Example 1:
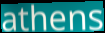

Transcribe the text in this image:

athens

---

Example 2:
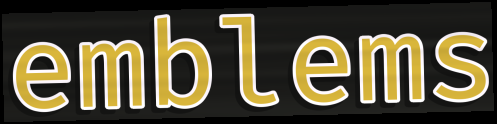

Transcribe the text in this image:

emblems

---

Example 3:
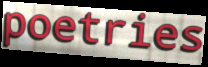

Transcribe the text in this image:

poetries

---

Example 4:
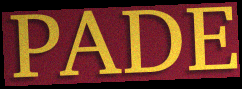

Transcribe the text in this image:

PADE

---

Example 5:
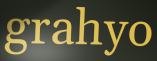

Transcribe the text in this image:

grahyo